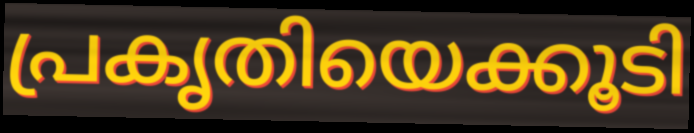
പ്രകൃതിയെക്കൂടി